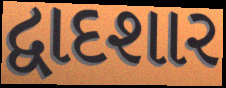
દ્વાદશાર